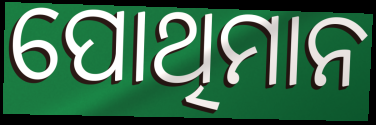
ପୋଥିମାନ